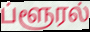
ப்ளூரல்